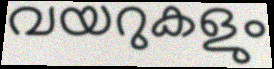
വയറുകളും